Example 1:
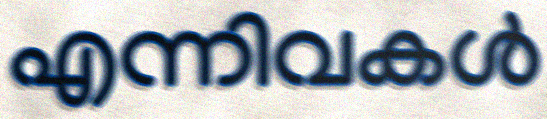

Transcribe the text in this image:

എന്നിവകൾ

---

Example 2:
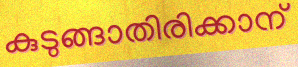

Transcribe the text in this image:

കുടുങ്ങാതിരിക്കാന്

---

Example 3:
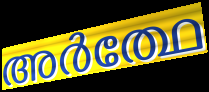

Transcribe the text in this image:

അർത്ഥേ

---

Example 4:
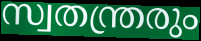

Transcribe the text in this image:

സ്വതന്ത്രരും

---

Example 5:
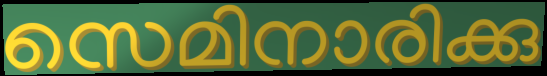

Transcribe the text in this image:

സെമിനാരിക്കു